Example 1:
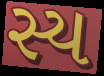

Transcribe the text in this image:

સ્ય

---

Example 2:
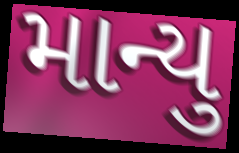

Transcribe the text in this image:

માન્યુ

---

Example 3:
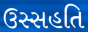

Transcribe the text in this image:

ઉસ્સહતિ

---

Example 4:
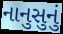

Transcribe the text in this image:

નાનુસુનું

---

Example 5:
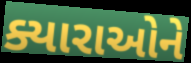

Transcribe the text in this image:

ક્યારાઓને